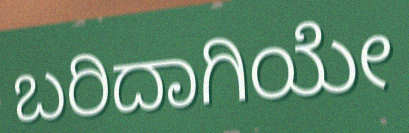
ಬರಿದಾಗಿಯೇ